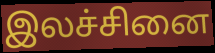
இலச்சினை